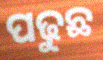
ପଢୁଛ